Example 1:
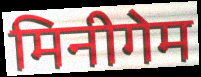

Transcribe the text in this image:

मिनीगेम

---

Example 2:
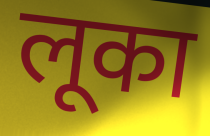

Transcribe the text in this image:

लूका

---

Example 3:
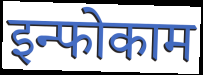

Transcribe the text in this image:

इन्फोकाम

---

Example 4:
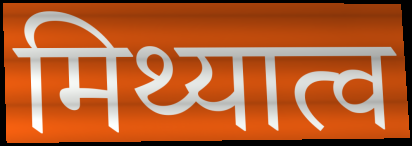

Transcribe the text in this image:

मिथ्यात्व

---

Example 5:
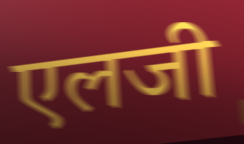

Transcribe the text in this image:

एलजी